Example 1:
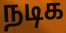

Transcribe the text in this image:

நடிக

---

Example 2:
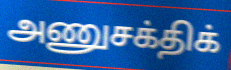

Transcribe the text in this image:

அணுசக்திக்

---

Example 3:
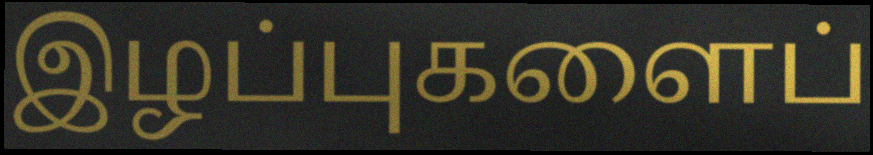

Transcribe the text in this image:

இழப்புகளைப்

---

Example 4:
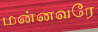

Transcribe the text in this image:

மன்னவரே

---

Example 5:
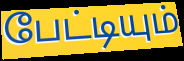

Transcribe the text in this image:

பேட்டியும்